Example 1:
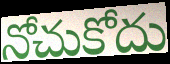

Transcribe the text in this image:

నోచుకోదు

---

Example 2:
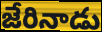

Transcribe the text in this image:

జేరినాడు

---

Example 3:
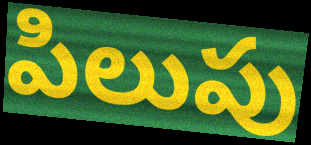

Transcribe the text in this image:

పిలుపు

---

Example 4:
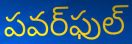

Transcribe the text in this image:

పవర్‌ఫుల్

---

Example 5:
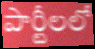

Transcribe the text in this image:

పార్టీలలో